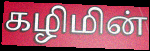
கழிமின்